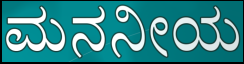
ಮನನೀಯ